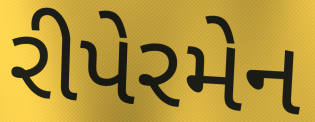
રીપેરમેન